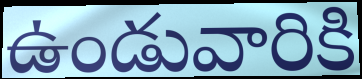
ఉండువారికి